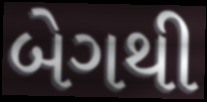
બેગથી